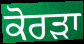
ਕੋਰੜਾ